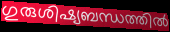
ഗുരുശിഷ്യബന്ധത്തിൽ